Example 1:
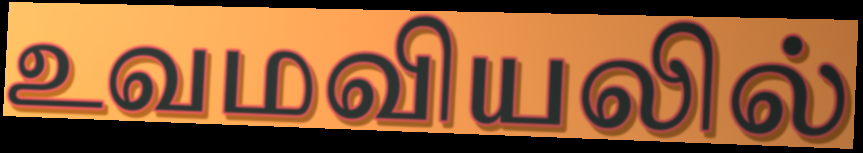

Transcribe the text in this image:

உவமவியலில்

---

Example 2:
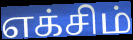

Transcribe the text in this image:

எக்சிம்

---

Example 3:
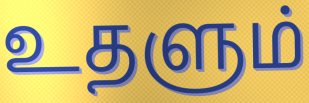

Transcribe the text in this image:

உதளும்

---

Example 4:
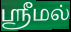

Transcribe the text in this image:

ஶ்ரீமல்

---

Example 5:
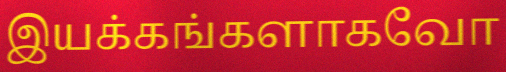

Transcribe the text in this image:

இயக்கங்களாகவோ